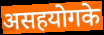
असहयोगके